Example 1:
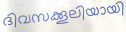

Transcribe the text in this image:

ദിവസക്കൂലിയായി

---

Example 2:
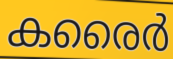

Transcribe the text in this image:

കരൈർ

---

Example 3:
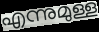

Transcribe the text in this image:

എന്നുമുള്ള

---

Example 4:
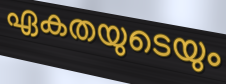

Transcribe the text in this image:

ഏകതയുടെയും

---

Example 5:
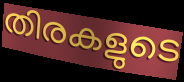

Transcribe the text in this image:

തിരകളുടെ